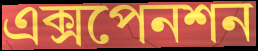
এক্সপেনশন